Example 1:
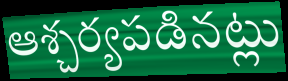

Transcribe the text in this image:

ఆశ్చర్యపడినట్లు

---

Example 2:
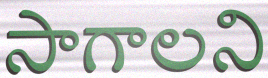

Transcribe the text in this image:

సాగాలని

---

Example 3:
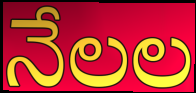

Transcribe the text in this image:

నేలల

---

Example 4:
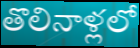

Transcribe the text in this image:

తొలినాళ్లలో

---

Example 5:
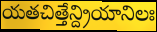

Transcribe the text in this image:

యతచిత్తేన్ద్రియానిలః